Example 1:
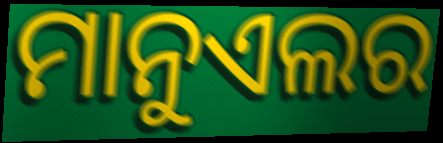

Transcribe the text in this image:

ମାନୁଏଲର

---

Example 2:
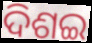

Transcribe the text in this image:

ଦିଶଇ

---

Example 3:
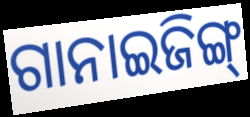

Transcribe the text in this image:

ଗାନାଇଜିଙ୍ଗ୍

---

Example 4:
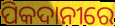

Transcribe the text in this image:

ପିକଦାନୀରେ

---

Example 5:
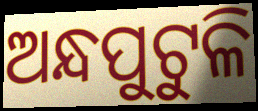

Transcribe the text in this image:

ଅନ୍ଧପୁଟୁଳି